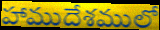
హాముదేశములో